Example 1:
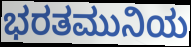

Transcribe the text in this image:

ಭರತಮುನಿಯ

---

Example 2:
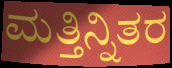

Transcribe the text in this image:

ಮತ್ತಿನ್ನಿತರ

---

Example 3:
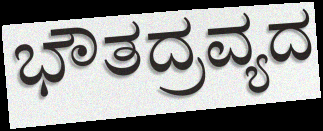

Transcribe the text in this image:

ಭೌತದ್ರವ್ಯದ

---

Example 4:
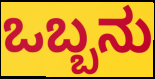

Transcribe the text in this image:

ಒಬ್ಬನು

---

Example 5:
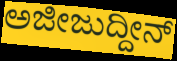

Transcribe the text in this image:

ಅಜೀಜುದ್ದೀನ್